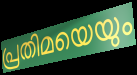
പ്രതിമയെയും